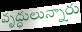
వృద్ధులున్నారు